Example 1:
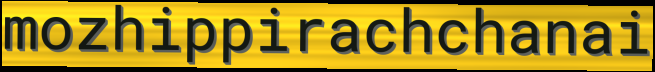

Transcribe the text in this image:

mozhippirachchanai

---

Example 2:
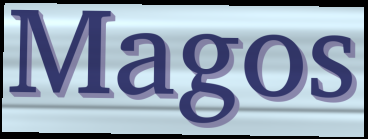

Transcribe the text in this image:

Magos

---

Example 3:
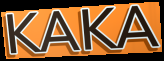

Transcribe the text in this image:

KAKA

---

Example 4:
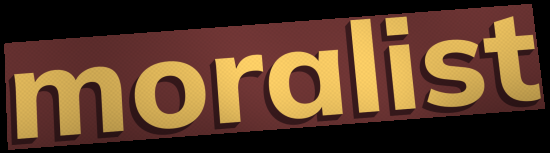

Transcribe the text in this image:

moralist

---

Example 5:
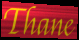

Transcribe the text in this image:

Thane